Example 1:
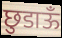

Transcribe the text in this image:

छुडाऊँ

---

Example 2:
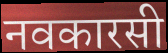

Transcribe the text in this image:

नवकारसी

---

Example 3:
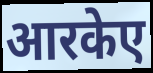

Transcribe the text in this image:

आरकेए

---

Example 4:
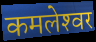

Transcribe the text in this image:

कमलेश्‍वर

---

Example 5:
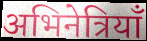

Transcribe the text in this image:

अभिनेत्रियाँ